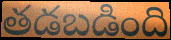
తడబడింది